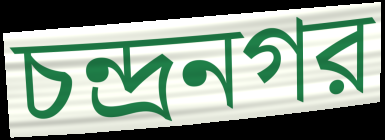
চন্দ্রনগর